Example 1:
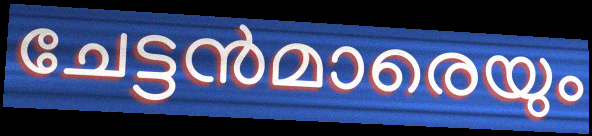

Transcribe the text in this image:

ചേട്ടൻമാരെയും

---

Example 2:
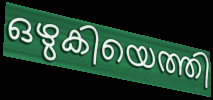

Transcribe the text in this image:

ഒഴുകിയെത്തി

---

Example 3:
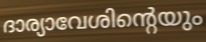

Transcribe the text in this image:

ദാര്യാവേശിന്റെയും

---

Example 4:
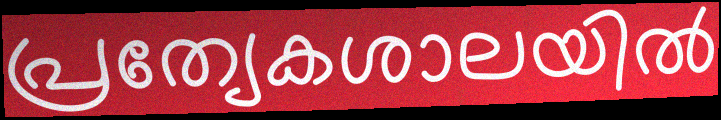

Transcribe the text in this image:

പ്രത്യേകശാലയിൽ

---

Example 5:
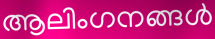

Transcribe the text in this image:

ആലിംഗനങ്ങൾ